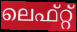
ലെഫ്റ്റ്